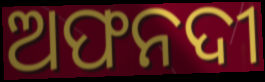
ଅଫନଦୀ